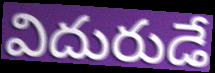
విదురుడే